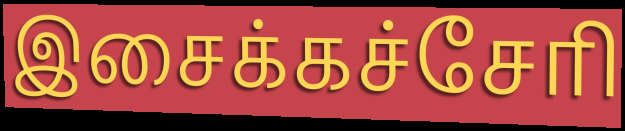
இசைக்கச்சேரி